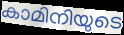
കാമിനിയുടെ